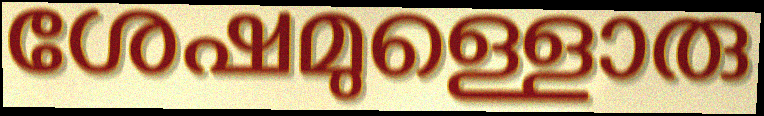
ശേഷമുള്ളൊരു